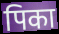
पिका